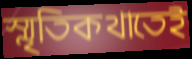
স্মৃতিকথাতেই